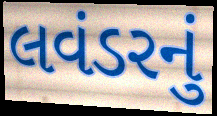
લવંડરનું